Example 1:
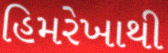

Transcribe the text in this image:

હિમરેખાથી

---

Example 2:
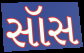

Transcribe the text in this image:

સૉસ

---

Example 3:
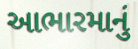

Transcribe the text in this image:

આભારમાનું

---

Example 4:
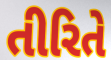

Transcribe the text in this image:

તીરિતે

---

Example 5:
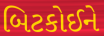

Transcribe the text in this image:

બિટકોઈને